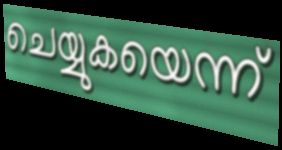
ചെയ്യുകയെന്ന്